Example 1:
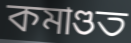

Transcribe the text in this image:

কমাণ্ডত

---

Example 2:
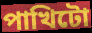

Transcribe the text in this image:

পাখিটো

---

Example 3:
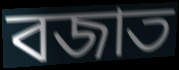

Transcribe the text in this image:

বজাত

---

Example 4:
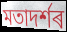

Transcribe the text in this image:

মতাদৰ্শৰ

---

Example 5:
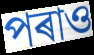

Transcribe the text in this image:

পৰাও